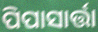
ପିପାସାର୍ତ୍ତା